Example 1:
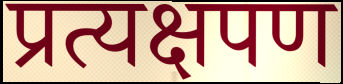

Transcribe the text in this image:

प्रत्यक्षपण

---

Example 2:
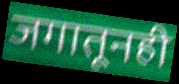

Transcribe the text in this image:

जगातूनही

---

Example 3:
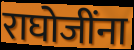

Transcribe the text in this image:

राघोजींना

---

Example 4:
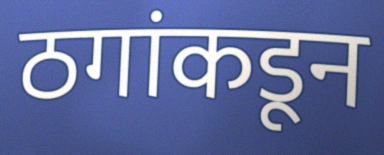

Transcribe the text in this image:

ठगांकडून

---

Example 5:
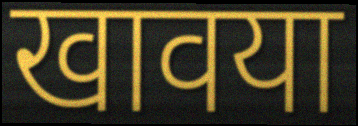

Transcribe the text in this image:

खावया